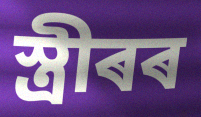
স্ত্ৰীৰৰ